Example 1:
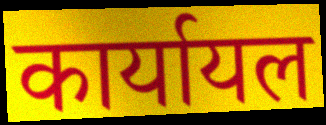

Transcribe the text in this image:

कार्यायल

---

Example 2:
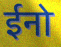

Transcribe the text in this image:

ईनो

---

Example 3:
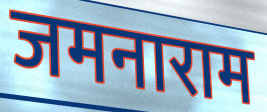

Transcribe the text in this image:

जमनाराम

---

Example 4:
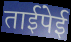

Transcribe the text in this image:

ताईपेई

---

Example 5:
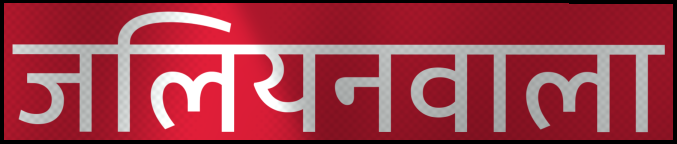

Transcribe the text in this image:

जलियनवाला